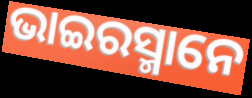
ଭାଇରସ୍ମାନେ